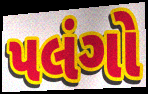
પલંગો